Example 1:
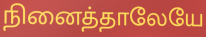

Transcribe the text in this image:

நினைத்தாலேயே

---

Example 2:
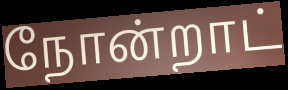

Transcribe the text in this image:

நோன்றாட்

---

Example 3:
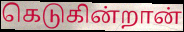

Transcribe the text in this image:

கெடுகின்றான்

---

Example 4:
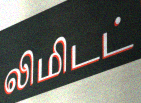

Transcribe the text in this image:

லிமிடட்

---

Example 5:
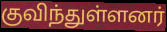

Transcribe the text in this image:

குவிந்துள்ளனர்